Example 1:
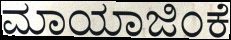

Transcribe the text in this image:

ಮಾಯಾಜಿಂಕೆ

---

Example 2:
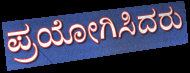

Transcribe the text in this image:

ಪ್ರಯೋಗಿಸಿದರು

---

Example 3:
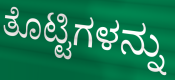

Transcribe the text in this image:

ತೊಟ್ಟಿಗಳನ್ನು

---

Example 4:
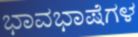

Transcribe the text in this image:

ಭಾವಭಾಷೆಗಳ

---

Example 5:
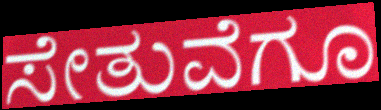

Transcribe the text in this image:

ಸೇತುವೆಗೂ